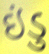
ઇંડુ